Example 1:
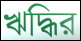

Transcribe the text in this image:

ঋদ্ধির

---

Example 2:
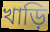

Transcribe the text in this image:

খাড়ি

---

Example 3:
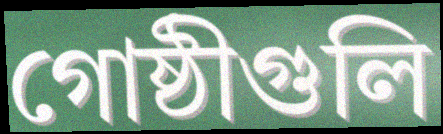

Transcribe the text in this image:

গোষ্ঠীগুলি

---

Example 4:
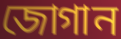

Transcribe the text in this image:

জোগান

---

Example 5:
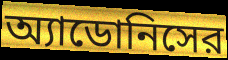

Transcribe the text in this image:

অ্যাডোনিসের